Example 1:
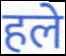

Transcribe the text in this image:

हले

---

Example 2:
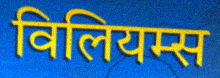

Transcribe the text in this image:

विलियम्‍स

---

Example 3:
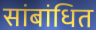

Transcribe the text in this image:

सांबांधित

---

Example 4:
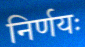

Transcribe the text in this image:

निर्णयः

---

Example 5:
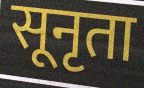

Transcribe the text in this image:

सूनृता